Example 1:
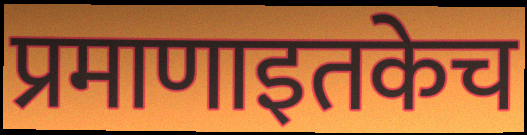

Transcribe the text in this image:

प्रमाणाइतकेच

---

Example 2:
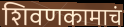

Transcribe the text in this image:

शिवणकामाचं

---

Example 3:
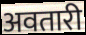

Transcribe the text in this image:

अवतारी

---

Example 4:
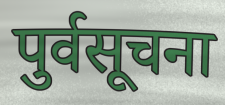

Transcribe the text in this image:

पुर्वसूचना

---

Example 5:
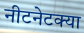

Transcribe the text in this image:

नीटनेटक्‍या